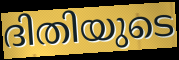
ദിതിയുടെ